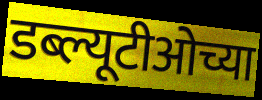
डब्ल्यूटीओच्या